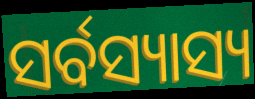
ସର୍ବସ୍ୟାସ୍ୟ